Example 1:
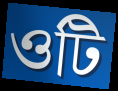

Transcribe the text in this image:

ওটি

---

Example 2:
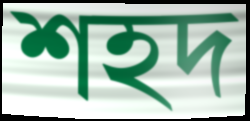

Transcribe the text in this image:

শহদ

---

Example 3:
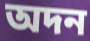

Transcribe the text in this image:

অদন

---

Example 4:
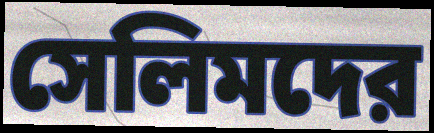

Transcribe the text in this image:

সেলিমদের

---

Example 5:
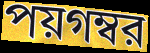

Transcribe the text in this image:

পয়গম্বর